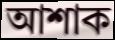
আশাক